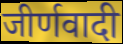
जीर्णवादी